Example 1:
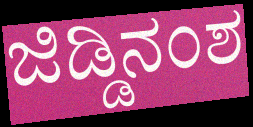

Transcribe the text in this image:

ಜಿಡ್ಡಿನಂಶ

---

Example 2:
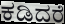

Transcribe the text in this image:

ಕಡಿದರೆ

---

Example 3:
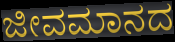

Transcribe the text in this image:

ಜೀವಮಾನದ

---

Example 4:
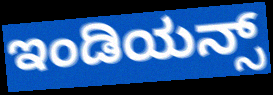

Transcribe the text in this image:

ಇಂಡಿಯನ್ಸ್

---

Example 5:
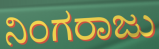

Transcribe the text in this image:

ನಿಂಗರಾಜು